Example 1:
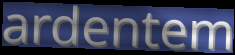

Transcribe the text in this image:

ardentem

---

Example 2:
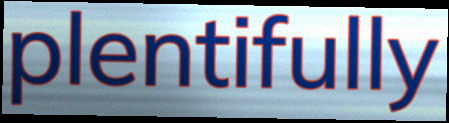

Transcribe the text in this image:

plentifully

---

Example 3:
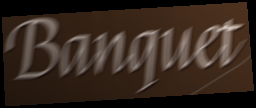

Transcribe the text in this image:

Banquet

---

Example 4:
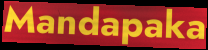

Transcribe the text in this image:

Mandapaka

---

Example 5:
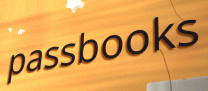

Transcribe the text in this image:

passbooks